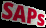
SAPs